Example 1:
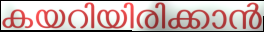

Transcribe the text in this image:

കയറിയിരിക്കാൻ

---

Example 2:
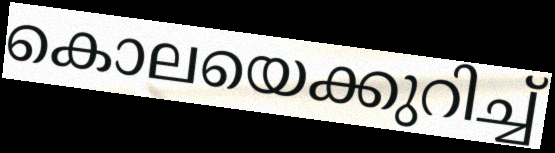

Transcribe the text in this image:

കൊലയെക്കുറിച്ച്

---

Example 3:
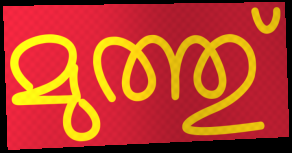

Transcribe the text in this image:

മുത്തു്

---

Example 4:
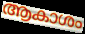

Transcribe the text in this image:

ആകാശം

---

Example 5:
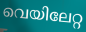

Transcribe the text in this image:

വെയിലേറ്റ